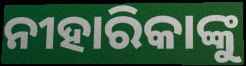
ନୀହାରିକାଙ୍କୁ